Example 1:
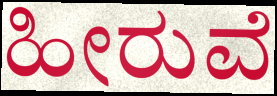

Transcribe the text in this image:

ಹೀರುವೆ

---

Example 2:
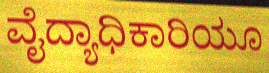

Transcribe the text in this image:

ವೈದ್ಯಾಧಿಕಾರಿಯೂ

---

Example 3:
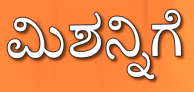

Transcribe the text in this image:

ಮಿಶನ್ನಿಗೆ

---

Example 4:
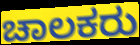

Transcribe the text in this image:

ಚಾಲಕರು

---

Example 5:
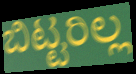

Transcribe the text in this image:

ಬಿಟ್ಟರಿಲ್ಲ